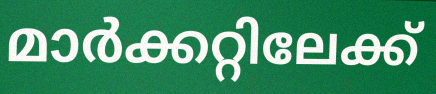
മാർക്കറ്റിലേക്ക്